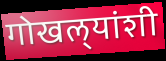
गोखल्यांशी